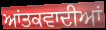
ਆਂਤਕਵਾਦੀਆਂ